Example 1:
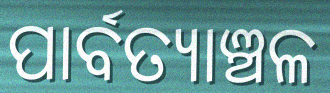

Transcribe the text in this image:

ପାର୍ବତ୍ୟାଞ୍ଚଳ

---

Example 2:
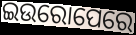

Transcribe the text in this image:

ଇଉରୋପେରେ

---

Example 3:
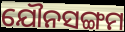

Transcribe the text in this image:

ଯୌନସଙ୍ଗମ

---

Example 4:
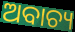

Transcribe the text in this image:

ଅବାଚ୍ୟ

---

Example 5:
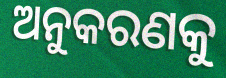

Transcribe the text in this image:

ଅନୁକରଣକୁ